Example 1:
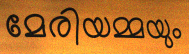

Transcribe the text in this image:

മേരിയമ്മയും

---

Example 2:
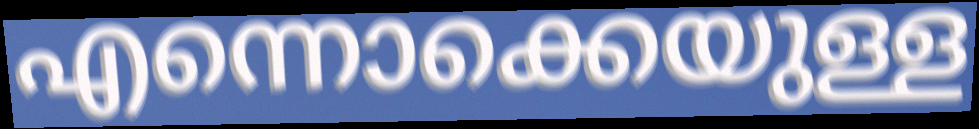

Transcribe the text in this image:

എന്നൊക്കെയുള്ള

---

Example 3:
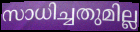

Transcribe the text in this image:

സാധിച്ചതുമില്ല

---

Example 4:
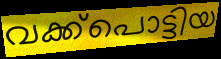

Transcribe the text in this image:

വക്ക്പൊട്ടിയ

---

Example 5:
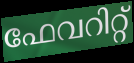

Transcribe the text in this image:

ഫേവറിറ്റ്